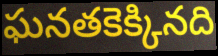
ఘనతకెక్కినది